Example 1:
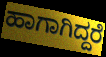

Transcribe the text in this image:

ಹಾಗಾಗಿದ್ದರೆ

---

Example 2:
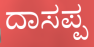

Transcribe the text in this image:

ದಾಸಪ್ಪ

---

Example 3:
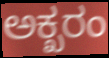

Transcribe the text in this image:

ಅಕ್ಖರಂ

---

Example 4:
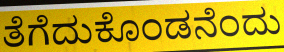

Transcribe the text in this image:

ತೆಗೆದುಕೊಂಡನೆಂದು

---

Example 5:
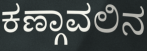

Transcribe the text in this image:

ಕಣ್ಗಾವಲಿನ